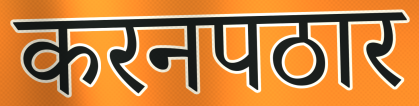
करनपठार